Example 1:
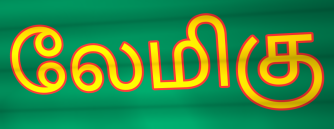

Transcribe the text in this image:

லேமிகு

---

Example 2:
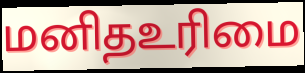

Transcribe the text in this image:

மனிதஉரிமை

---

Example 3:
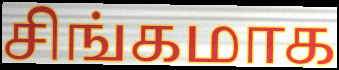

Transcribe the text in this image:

சிங்கமாக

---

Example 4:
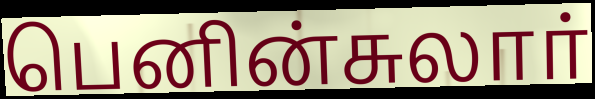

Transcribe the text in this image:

பெனின்சுலார்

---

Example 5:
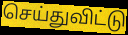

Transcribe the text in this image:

செய்துவிட்டு